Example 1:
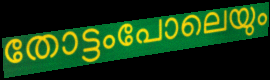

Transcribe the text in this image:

തോട്ടംപോലെയും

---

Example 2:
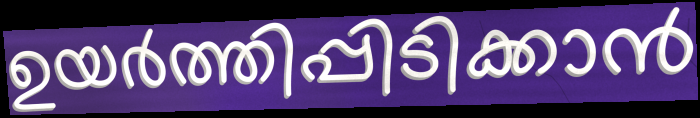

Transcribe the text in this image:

ഉയർത്തിപ്പിടിക്കാൻ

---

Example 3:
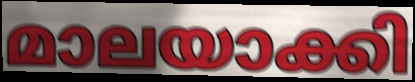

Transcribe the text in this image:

മാലയാക്കി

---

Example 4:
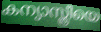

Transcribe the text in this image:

കന്യാസ്ത്രീയെ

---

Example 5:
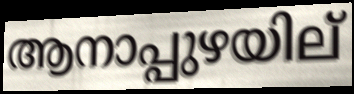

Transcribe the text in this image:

ആനാപ്പുഴയില്